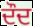
ਦੌਦ